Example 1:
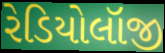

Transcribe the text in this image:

રેડિયોલૉજી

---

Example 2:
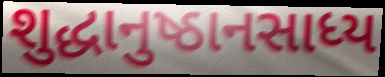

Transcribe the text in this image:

શુદ્ધાનુષ્ઠાનસાધ્ય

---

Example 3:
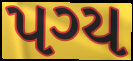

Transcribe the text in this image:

પગ્ય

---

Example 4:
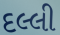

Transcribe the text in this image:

દલ્લી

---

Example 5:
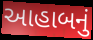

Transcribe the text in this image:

આહાબનું